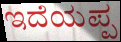
ಇದೆಯಪ್ಪ